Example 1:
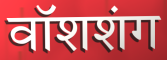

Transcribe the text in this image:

वॉशशंग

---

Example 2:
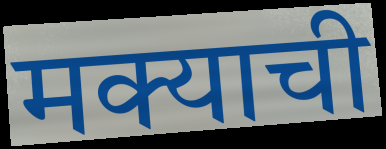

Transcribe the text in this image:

मक्याची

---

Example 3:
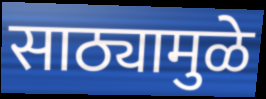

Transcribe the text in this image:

साठ्यामुळे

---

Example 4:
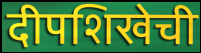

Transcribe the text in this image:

दीपशिखेची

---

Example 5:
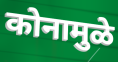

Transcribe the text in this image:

कोनामुळे